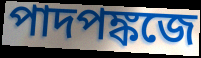
পাদপঙ্কজে